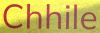
Chhile